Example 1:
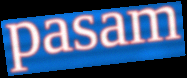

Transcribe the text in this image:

pasam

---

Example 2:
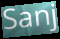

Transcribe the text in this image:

Sanj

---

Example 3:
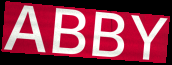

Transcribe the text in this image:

ABBY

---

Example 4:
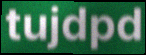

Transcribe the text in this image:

tujdpd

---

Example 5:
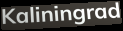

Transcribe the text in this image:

Kaliningrad